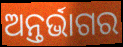
ଅନ୍ତର୍ଭାଗର